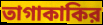
তাগাকাকির